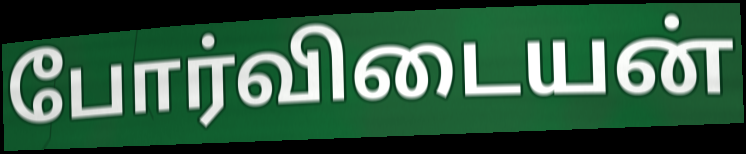
போர்விடையன்